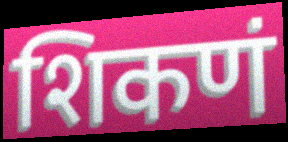
शिकणं